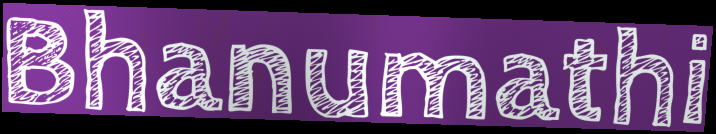
Bhanumathi